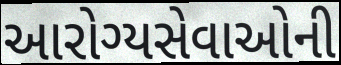
આરોગ્યસેવાઓની